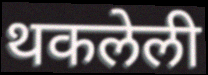
थकलेली